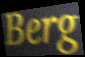
Berg